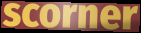
scorner